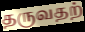
தருவதற்